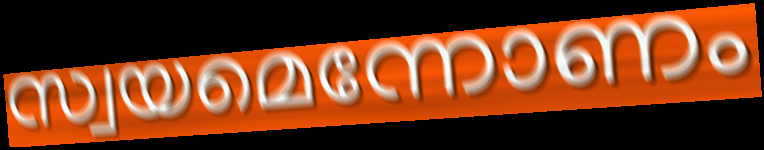
സ്വയമെന്നോണം